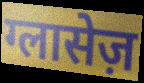
ग्लासेज़